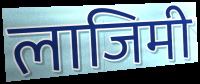
लाजिमी